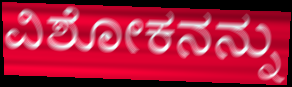
ವಿಶೋಕನನ್ನು